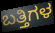
ಬತ್ತಿಗಳ